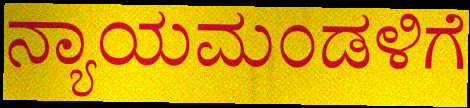
ನ್ಯಾಯಮಂಡಳಿಗೆ